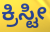
ಕ್ರಿಸ್ಟೀ